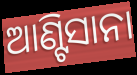
ଆଣ୍ଟିସାନା